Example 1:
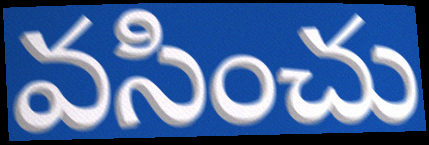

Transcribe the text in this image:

వసించు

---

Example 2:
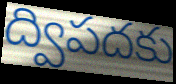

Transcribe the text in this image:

ద్విపదకు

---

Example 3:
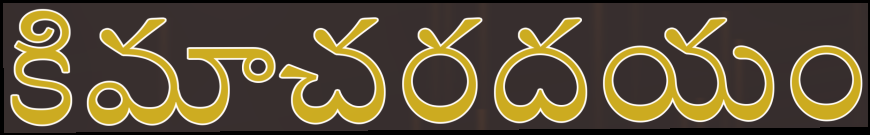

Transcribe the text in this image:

కిమాచరదయం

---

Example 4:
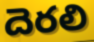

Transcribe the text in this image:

దెరలి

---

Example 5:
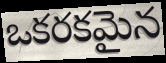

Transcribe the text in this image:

ఒకరకమైన